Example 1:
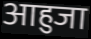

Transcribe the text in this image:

आहुजा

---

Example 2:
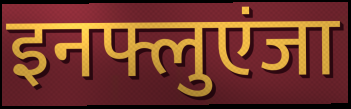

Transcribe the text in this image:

इनफ्लुएंजा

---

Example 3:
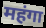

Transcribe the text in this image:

महंगा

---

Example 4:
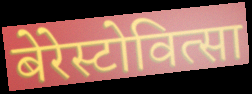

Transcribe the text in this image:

बेरेस्टोवित्सा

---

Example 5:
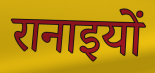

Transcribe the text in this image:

रानाइयों